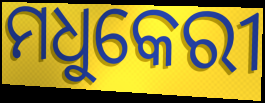
ମଧୁକେରୀ